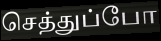
செத்துப்போ